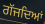
ਗੱਜਦਿਆਂ